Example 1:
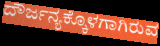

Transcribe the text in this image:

ದೌರ್ಜನ್ಯಕ್ಕೊಳಗಾಗಿರುವ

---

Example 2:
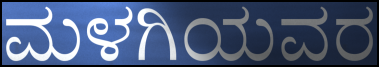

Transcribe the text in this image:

ಮಳಗಿಯವರ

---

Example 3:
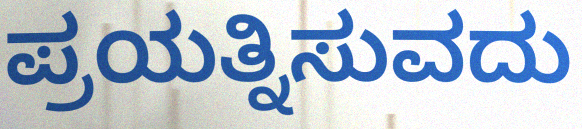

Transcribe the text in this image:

ಪ್ರಯತ್ನಿಸುವದು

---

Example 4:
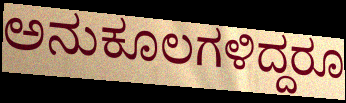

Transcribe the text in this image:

ಅನುಕೂಲಗಳಿದ್ದರೂ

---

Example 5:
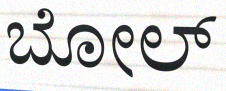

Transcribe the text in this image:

ಬೋಲ್